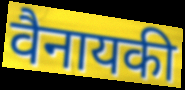
वैनायकी